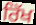
ਰਿੱਖ